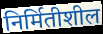
निर्मितीशील